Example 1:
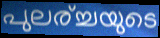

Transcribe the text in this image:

പുലര്ച്ചയുടെ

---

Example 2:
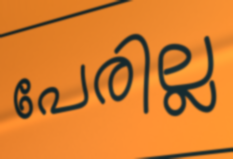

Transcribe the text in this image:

പേരില്ല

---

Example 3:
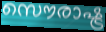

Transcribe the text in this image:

സൌരാഷ്ട്ര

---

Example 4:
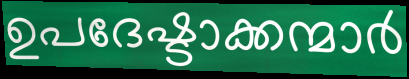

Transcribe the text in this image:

ഉപദേഷ്ടാക്കന്മാർ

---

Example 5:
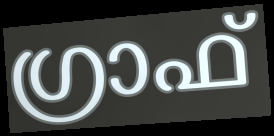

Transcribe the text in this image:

ഗ്രാഫ്